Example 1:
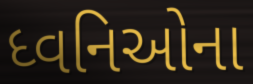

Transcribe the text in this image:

ધ્વનિઓના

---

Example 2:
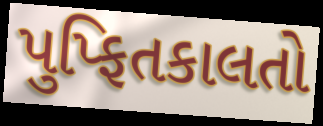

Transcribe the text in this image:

પુપ્ફિતકાલતો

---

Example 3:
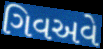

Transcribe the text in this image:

ગિવઅવે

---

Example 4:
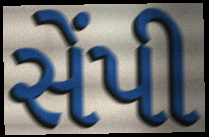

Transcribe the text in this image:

સેંપી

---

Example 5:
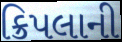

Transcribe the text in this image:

ક્રિપલાની